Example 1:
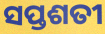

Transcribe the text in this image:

ସପ୍ତଶତୀ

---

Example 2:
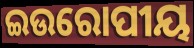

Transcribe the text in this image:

ଇଉରୋପୀୟ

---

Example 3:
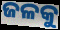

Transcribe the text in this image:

ଜଳକୁ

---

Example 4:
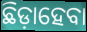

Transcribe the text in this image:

ଛିଡ଼ାହେବା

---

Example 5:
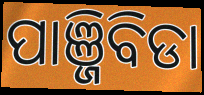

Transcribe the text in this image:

ପାଞ୍ଜିବିଡା